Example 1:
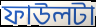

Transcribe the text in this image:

ফাউলটা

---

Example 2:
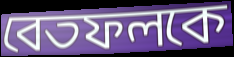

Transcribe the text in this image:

বেতফলকে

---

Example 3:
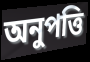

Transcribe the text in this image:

অনুপত্তি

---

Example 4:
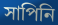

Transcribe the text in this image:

সাপিনি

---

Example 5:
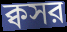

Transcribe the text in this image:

ক্বসর